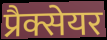
प्रैक्सेयर